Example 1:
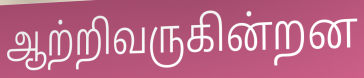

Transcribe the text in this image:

ஆற்றிவருகின்றன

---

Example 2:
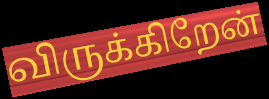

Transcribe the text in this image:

விருக்கிறேன்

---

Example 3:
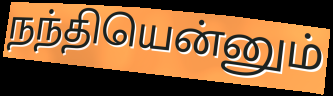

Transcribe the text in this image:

நந்தியென்னும்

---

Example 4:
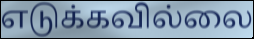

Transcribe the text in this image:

எடுக்கவில்லை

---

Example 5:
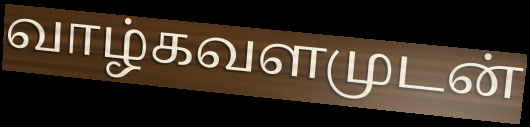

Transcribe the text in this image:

வாழ்கவளமுடன்